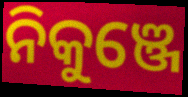
ନିକୁଞ୍ଜେ